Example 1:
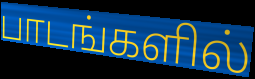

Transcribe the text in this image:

பாடங்களில்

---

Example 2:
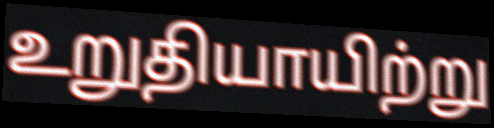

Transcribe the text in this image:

உறுதியாயிற்று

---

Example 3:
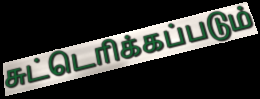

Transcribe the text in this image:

சுட்டெரிக்கப்படும்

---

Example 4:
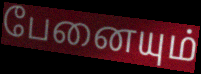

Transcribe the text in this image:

பேனையும்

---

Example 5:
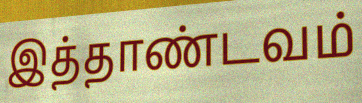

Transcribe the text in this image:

இத்தாண்டவம்